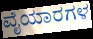
ವೈಯಾರಗಳ